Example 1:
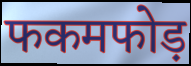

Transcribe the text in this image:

फकमफोड़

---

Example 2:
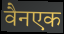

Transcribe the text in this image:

वैनएक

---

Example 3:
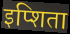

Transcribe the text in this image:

इप्शिता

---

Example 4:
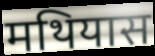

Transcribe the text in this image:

मथियास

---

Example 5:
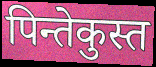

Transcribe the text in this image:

पिन्तेकुस्त